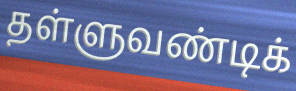
தள்ளுவண்டிக்